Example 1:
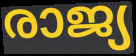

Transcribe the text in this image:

രാജ്യ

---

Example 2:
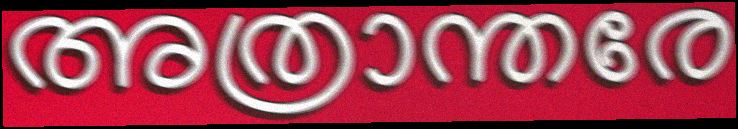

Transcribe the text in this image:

അത്രാന്തരേ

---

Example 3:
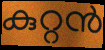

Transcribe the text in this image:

കുറ്റൻ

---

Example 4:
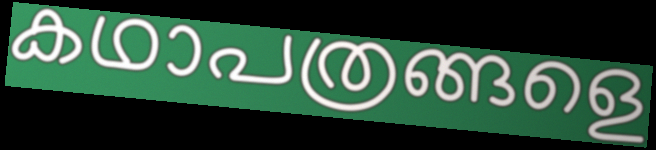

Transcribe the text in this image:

കഥാപത്രങ്ങളെ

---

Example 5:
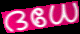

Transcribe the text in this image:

ദധേ